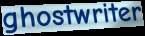
ghostwriter